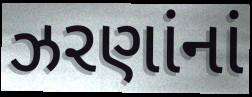
ઝરણાંનાં